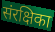
संरक्षिका